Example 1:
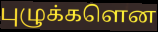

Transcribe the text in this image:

புழுக்களென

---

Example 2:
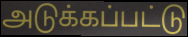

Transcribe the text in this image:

அடுக்கப்பட்டு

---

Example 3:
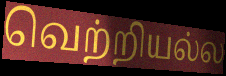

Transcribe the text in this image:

வெற்றியல்ல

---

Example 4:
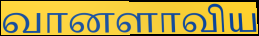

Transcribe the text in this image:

வானளாவிய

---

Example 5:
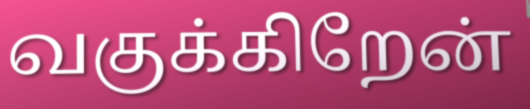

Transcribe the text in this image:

வகுக்கிறேன்